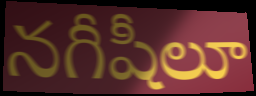
నగీషీలూ